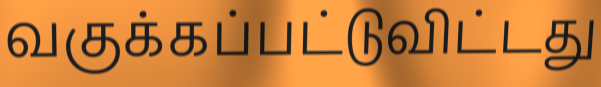
வகுக்கப்பட்டுவிட்டது